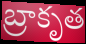
బ్రాకృత